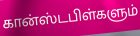
கான்ஸ்டபிள்களும்